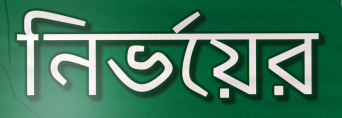
নির্ভয়ের